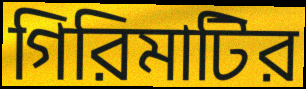
গিরিমাটির